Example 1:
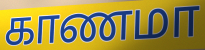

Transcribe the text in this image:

காணமா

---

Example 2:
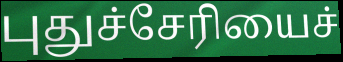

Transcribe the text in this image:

புதுச்சேரியைச்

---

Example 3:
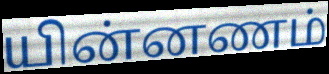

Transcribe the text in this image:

யின்னணம்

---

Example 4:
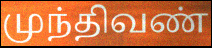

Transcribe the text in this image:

முந்திவண்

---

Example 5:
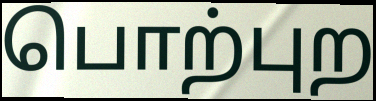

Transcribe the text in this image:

பொற்புற